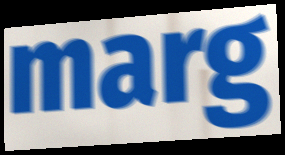
marg